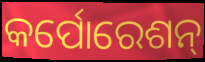
କର୍ପୋରେଶନ୍